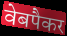
वेबपैकर